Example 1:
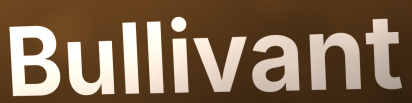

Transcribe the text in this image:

Bullivant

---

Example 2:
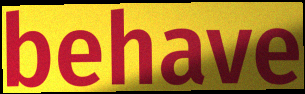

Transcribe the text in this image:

behave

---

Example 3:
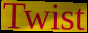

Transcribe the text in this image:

Twist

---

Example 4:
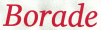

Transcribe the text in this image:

Borade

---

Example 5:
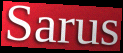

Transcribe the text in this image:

Sarus